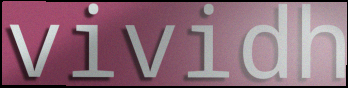
vividh